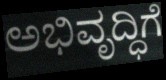
ಅಭಿವೃದ್ಧಿಗೆ